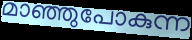
മാഞ്ഞുപോകുന്ന